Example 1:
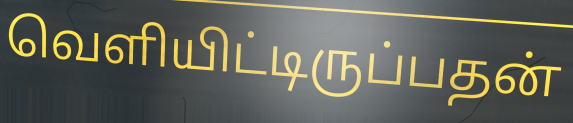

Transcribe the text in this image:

வெளியிட்டிருப்பதன்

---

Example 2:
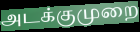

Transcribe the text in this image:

அடக்குமுறை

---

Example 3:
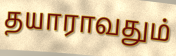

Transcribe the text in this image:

தயாராவதும்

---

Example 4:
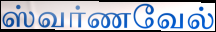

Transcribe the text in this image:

ஸ்வர்ணவேல்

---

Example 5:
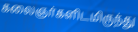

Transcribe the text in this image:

கலைஞர்களிடமிருந்து